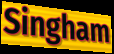
Singham